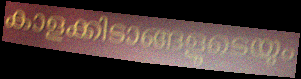
കാളക്കിടാങ്ങളുടെയും